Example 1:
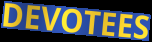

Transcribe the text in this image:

DEVOTEES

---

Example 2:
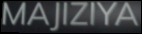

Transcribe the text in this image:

MAJIZIYA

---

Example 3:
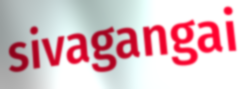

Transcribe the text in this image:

sivagangai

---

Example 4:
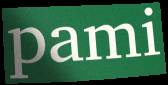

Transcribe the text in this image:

pami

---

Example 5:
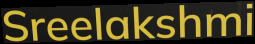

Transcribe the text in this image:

Sreelakshmi